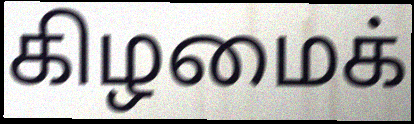
கிழமைக்